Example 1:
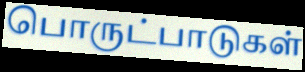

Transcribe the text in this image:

பொருட்பாடுகள்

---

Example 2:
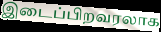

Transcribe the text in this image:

இடைப்பிறவரலாக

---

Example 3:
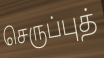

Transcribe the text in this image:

செருப்புத்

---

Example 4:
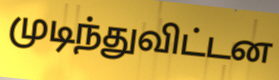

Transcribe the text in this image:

முடிந்துவிட்டன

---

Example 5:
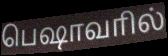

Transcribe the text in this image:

பெஷாவரில்